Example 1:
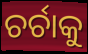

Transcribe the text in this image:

ଚର୍ଚାକୁ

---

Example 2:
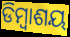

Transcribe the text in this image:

ଡିମ୍ବାଶୟ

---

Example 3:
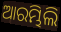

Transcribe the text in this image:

ଆରମ୍ଭିଲି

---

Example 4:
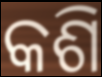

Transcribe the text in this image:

କଶି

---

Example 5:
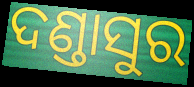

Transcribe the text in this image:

ଦଣ୍ଡାସୁର